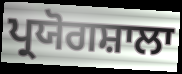
ਪ੍ਰਯੋਗਸ਼ਾਲਾ